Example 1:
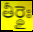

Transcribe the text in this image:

తీర్థైః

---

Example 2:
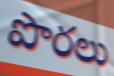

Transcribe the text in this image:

పొరలు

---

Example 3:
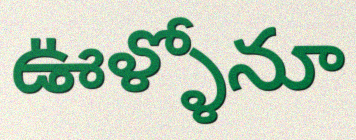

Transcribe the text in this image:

ఊళ్ళోనూ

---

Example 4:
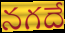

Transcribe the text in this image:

నగదే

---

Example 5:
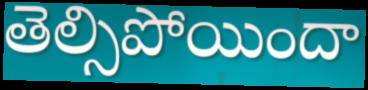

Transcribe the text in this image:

తెల్సిపోయిందా